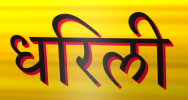
धरिली